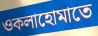
ওকলাহোমাতে